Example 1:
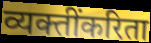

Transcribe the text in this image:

व्यक्तींकरिता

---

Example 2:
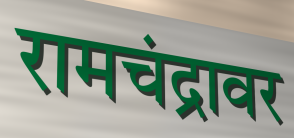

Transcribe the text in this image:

रामचंद्रावर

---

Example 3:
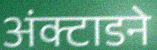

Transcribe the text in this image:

अंक्टाडने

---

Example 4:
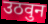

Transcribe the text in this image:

उठवुन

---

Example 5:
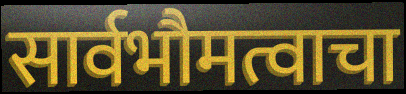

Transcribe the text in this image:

सार्वभौमत्वाचा